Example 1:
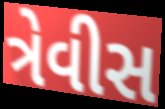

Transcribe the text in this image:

ત્રેવીસ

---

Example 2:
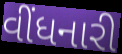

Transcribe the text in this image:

વીંધનારી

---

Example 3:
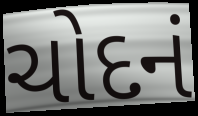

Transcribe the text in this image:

ચોદનં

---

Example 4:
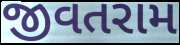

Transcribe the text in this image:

જીવતરામ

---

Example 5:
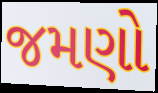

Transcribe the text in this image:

જમણો